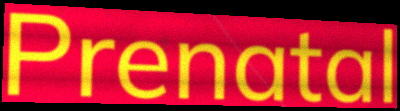
Prenatal